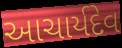
આચાર્યદેવ